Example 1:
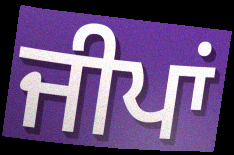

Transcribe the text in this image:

ਜੀਪਾਂ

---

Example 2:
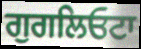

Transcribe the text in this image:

ਗੁਗਲਿਓਟਾ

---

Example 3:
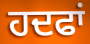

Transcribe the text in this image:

ਹਦਫਾਂ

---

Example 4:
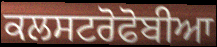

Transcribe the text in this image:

ਕਲਸਟਰੋਫੋਬੀਆ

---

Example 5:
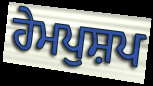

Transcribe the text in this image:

ਹੇਮਪੁਸ਼ਪ